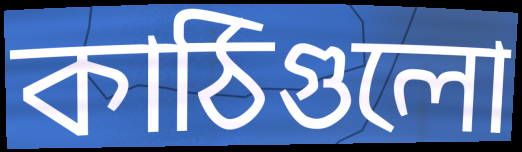
কাঠিগুলো